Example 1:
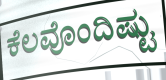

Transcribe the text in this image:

ಕೆಲವೊಂದಿಷ್ಟು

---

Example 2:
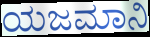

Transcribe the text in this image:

ಯಜಮಾನಿ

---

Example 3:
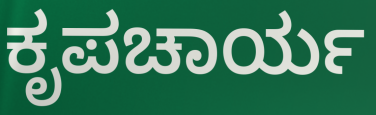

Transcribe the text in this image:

ಕೃಪಚಾರ್ಯ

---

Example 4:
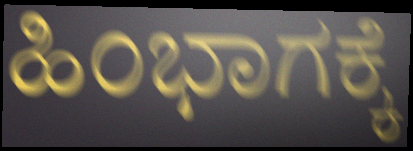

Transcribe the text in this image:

ಹಿಂಭಾಗಕ್ಕೆ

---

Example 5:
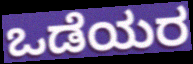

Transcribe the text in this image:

ಒಡೆಯರ